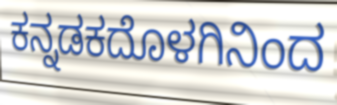
ಕನ್ನಡಕದೊಳಗಿನಿಂದ